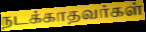
நடக்காதவர்கள்